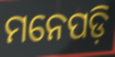
ମନେପଡ଼ି